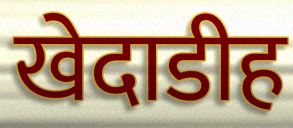
खेदाडीह